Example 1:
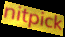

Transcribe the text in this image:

nitpick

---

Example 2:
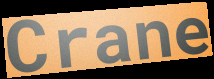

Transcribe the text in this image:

Crane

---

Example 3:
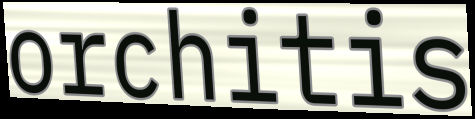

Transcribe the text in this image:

orchitis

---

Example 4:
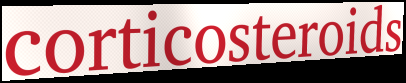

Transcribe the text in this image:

corticosteroids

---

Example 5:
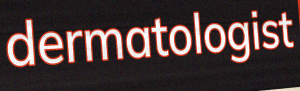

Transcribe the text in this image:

dermatologist